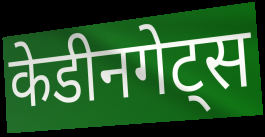
केडीनगेट्स